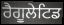
ਰੈਗੂਲੇਟਿਡ